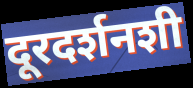
दूरदर्शनशी